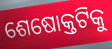
ଶେଷୋକ୍ତଟିକୁ